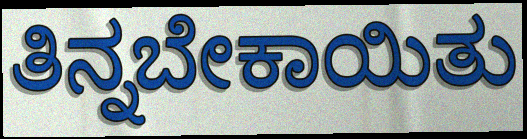
ತಿನ್ನಬೇಕಾಯಿತು